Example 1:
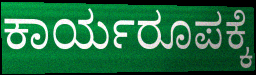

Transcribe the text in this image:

ಕಾರ್ಯರೂಪಕ್ಕೆ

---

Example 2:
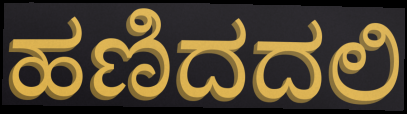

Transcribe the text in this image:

ಹಣಿದದಲಿ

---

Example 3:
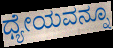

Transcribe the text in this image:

ಧ್ಯೇಯವನ್ನೂ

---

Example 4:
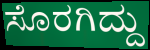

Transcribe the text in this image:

ಸೊರಗಿದ್ದು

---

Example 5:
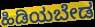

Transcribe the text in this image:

ಹಿಡಿಯಬೇಡ